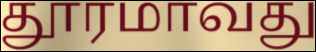
தூரமாவது